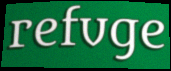
refuge